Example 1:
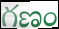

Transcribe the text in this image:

గణం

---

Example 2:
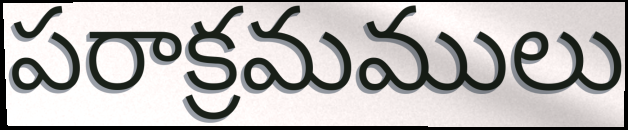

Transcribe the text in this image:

పరాక్రమములు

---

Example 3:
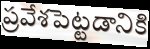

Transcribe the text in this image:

ప్రవేశపెట్టడానికి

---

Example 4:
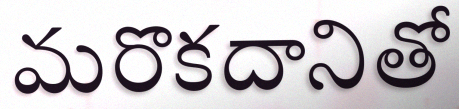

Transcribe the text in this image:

మరొకదానితో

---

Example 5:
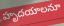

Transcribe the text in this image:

హృదయాలనూ